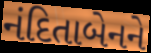
નંદિતાબેનને